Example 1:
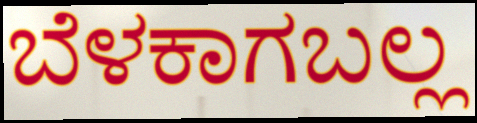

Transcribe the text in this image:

ಬೆಳಕಾಗಬಲ್ಲ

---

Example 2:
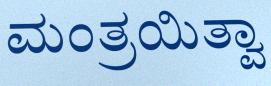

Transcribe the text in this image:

ಮಂತ್ರಯಿತ್ವಾ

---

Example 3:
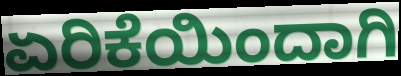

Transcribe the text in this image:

ಏರಿಕೆಯಿಂದಾಗಿ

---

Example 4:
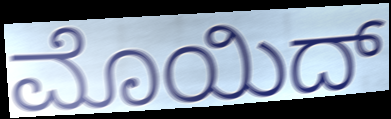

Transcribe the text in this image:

ಮೊಯಿದ್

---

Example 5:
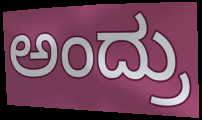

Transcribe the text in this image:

ಅಂದ್ರು